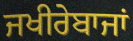
ਜਖੀਰੇਬਾਜਾਂ